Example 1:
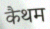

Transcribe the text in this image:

कैथम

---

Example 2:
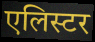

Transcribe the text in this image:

एलिस्टर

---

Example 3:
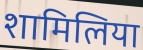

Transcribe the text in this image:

शामिलिया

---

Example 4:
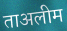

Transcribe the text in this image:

ताअलीम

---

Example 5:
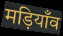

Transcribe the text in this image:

मड़ियाँव